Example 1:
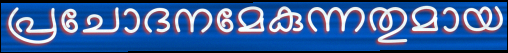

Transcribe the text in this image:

പ്രചോദനമേകുന്നതുമായ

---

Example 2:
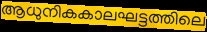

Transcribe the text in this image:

ആധുനികകാലഘട്ടത്തിലെ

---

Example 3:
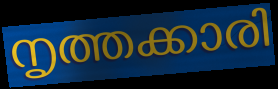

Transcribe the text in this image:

നൃത്തക്കാരി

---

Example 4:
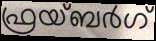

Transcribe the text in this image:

ഫ്രയ്ബർഗ്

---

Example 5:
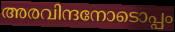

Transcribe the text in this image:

അരവിന്ദനോടൊപ്പം